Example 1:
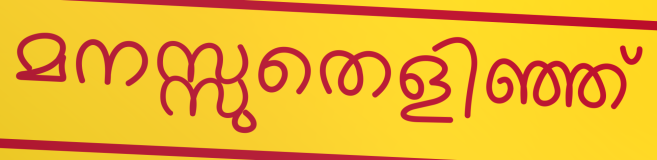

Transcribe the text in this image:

മനസ്സുതെളിഞ്ഞ്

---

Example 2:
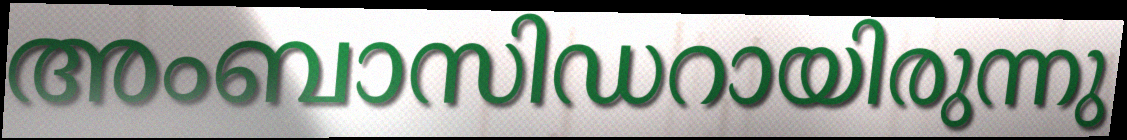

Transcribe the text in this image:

അംബാസിഡറായിരുന്നു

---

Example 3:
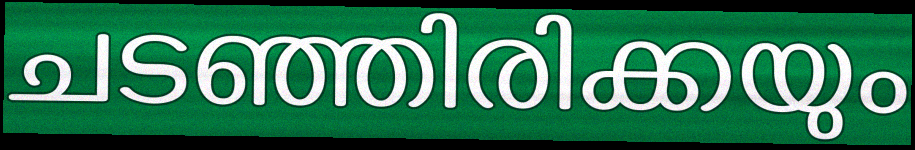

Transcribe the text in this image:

ചടഞ്ഞിരിക്കയും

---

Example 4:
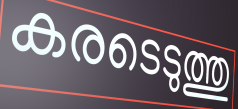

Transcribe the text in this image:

കരടെടുത്തു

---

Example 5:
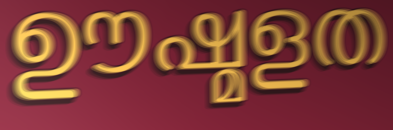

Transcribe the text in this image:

ഊഷ്മളത